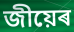
জীয়েৰ